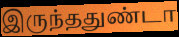
இருந்ததுண்டா